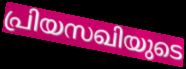
പ്രിയസഖിയുടെ